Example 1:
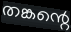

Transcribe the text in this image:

തങ്കന്റെ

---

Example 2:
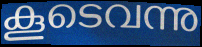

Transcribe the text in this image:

കൂടെവന്നു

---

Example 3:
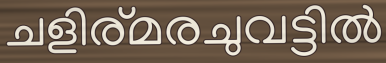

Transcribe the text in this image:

ചളിര്മരചുവട്ടിൽ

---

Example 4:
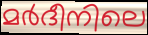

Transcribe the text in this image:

മർദീനിലെ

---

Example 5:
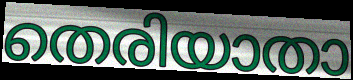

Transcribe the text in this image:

തെരിയാതാ